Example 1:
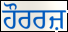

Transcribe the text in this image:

ਹੌਰਰਜ਼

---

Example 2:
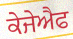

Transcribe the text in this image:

ਕੇਜੇਐਫ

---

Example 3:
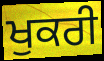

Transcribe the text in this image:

ਖੁਕਰੀ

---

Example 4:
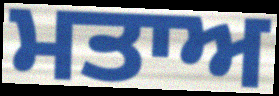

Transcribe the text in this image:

ਮਤਾਅ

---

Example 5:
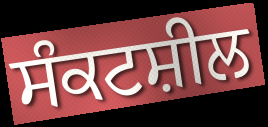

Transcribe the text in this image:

ਸੰਕਟਸ਼ੀਲ